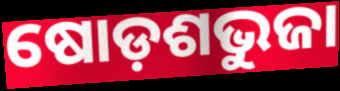
ଷୋଡ଼ଶଭୁଜା